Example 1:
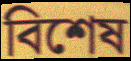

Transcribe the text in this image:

বিশেষ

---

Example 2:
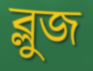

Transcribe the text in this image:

ব্লুজ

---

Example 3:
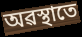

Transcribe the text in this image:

অৱস্থাতে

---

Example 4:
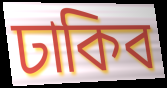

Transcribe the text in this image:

ঢাকিব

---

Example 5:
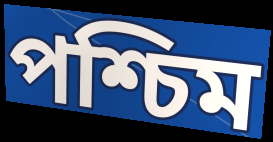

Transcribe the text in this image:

পশ্চিম